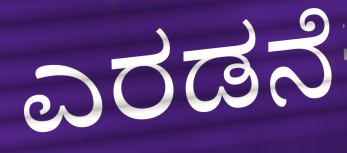
ಎರಡನೆ